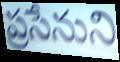
ప్రసేనుని